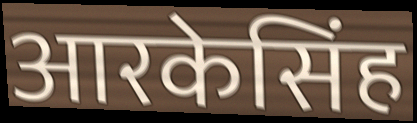
आरकेसिंह